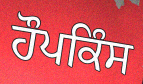
ਹੌਪਕਿੰਸ